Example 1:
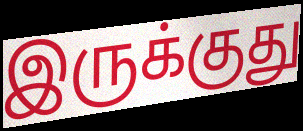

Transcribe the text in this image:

இருக்குது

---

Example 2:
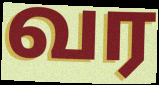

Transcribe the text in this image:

வர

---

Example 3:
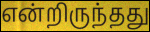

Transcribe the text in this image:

என்றிருந்தது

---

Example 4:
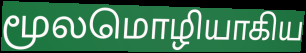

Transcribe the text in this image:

மூலமொழியாகிய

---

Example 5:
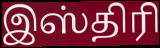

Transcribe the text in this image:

இஸ்திரி